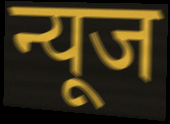
न्‍यूज